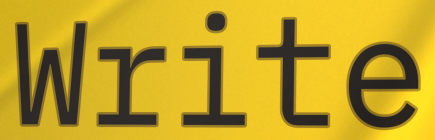
Write